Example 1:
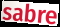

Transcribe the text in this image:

sabre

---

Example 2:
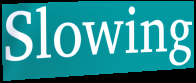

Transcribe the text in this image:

Slowing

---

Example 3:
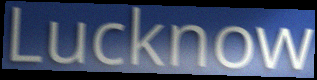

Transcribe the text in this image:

Lucknow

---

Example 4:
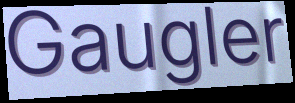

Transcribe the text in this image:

Gaugler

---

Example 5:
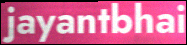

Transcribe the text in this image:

jayantbhai